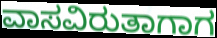
ವಾಸವಿರುತಾಗಾಗ